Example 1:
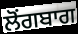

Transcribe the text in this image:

ਲੋਂਗਬਾਗ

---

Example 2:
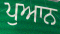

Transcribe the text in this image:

ਪੁਆਨ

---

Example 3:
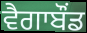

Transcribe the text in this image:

ਵੈਗਾਬੌਂਡ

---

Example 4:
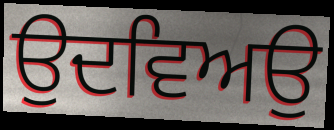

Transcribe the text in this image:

ਉਦਵਿਅਉ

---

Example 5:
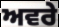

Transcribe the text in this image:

ਅਵਰੇ